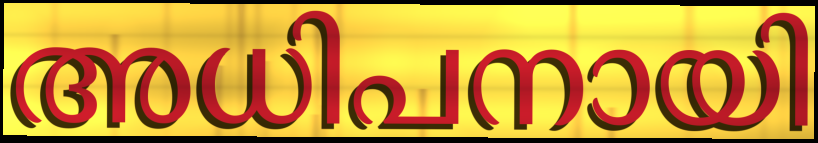
അധിപനായി